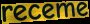
receme